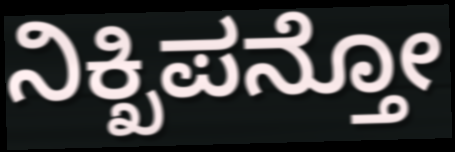
ನಿಕ್ಖಿಪನ್ತೋ